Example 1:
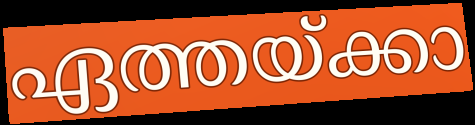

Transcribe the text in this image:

ഏത്തയ്ക്കാ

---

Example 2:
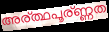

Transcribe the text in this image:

അര്ത്ഥപൂര്ണ്ണത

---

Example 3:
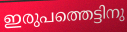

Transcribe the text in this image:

ഇരുപത്തെട്ടിനു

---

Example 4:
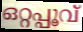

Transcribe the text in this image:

ഒറ്റപ്പൂവ്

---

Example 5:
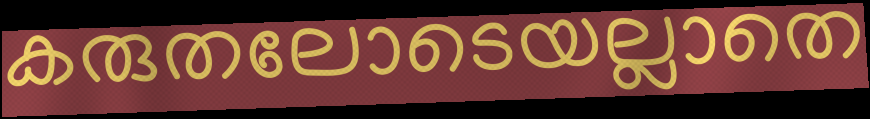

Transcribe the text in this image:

കരുതലോടെയല്ലാതെ